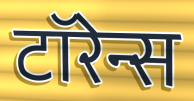
टॉरेन्स